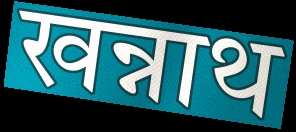
खन्नाथ